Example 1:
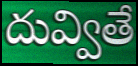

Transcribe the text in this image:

దువ్వితే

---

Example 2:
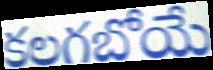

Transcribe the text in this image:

కలగబోయే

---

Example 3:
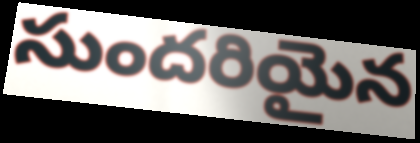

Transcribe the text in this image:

సుందరియైన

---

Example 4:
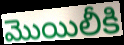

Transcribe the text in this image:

మొయిలీకి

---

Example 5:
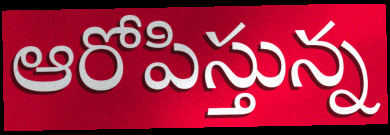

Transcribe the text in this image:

ఆరోపిస్తున్న